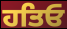
ਹਤਿਓ